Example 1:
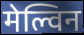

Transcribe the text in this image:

मेल्विन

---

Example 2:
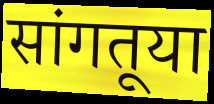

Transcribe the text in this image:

सांगतूया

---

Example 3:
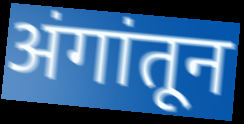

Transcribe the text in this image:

अंगांतून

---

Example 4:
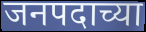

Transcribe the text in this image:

जनपदाच्या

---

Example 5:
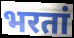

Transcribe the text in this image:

भरतां